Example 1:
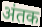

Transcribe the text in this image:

अंतक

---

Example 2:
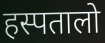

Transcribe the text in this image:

हस्पतालो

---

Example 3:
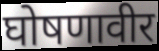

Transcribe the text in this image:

घोषणावीर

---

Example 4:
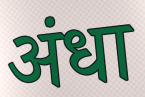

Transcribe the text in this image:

अंधा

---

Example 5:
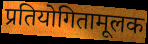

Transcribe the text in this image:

प्रतियोगितामूलक